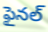
ఫైనల్